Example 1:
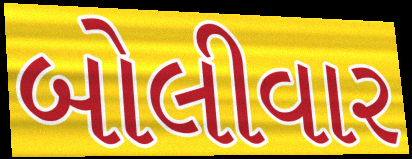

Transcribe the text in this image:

બોલીવાર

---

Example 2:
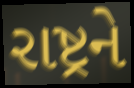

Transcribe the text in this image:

રાષ્ટ્રને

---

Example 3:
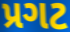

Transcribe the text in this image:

પ્રગટ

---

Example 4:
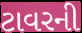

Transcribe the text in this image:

ટાવરની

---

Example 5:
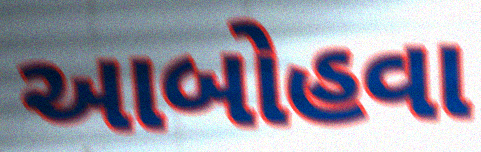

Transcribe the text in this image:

આબોહવા